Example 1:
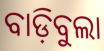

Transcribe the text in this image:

ବାଡ଼ିବୁଲା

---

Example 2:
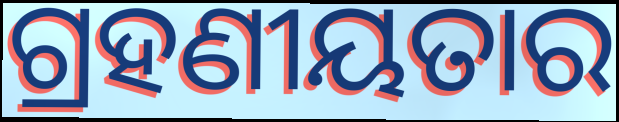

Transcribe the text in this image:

ଗ୍ରହଣୀୟତାର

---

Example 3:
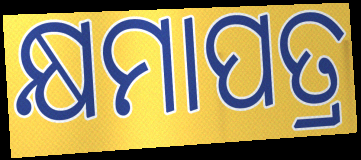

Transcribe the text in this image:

କ୍ଷମାପତ୍ର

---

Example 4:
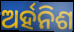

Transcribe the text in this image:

ଅର୍ହନିଶ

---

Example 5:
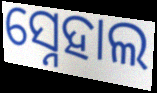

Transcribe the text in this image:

ସ୍ନେହାଲ